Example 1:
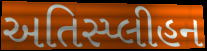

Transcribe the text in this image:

અતિસ્પ્લીહન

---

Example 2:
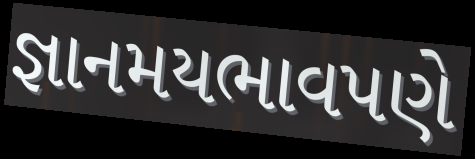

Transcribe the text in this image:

જ્ઞાનમયભાવપણે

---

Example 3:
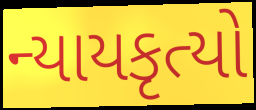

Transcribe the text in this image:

ન્યાયકૃત્યો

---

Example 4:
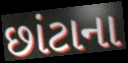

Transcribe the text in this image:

છાંટાના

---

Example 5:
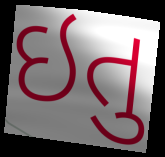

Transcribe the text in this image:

ઇતુ